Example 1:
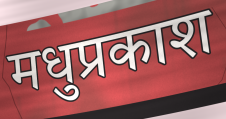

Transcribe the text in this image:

मधुप्रकाश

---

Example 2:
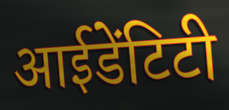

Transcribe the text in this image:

आईडेंटिटी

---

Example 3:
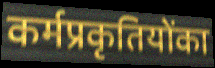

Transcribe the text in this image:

कर्मप्रकृतियोंका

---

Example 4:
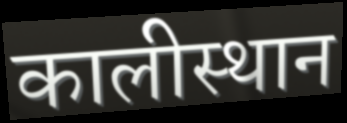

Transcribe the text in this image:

कालीस्थान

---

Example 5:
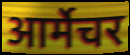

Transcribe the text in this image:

आर्मेचर